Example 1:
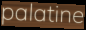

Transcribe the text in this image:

palatine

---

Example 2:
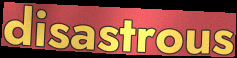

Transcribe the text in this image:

disastrous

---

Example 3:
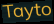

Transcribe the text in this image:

Tayto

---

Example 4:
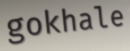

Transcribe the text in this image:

gokhale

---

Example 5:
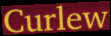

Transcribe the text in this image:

Curlew